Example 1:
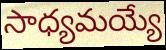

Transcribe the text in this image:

సాధ్యమయ్యే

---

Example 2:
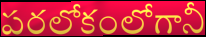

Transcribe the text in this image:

పరలోకంలోగానీ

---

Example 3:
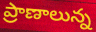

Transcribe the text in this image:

ప్రాణాలున్న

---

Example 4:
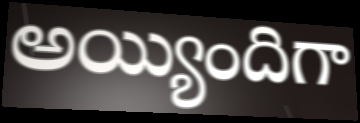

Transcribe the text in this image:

అయ్యిందిగా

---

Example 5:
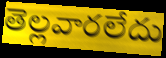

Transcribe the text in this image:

తెల్లవారలేదు